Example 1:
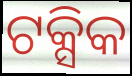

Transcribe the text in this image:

ଟକ୍ସିକ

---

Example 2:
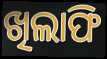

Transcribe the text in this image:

ଖିଲାଫି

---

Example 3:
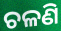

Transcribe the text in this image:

ଚଳଣି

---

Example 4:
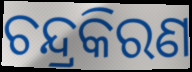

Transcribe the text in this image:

ଚନ୍ଦ୍ରକିରଣ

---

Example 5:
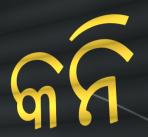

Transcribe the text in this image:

କନି